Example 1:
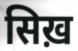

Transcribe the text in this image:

सिख़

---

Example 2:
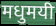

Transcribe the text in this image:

मधुमयी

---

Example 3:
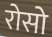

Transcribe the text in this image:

रोसो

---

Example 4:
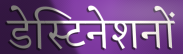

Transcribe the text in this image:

डेस्टिनेशनों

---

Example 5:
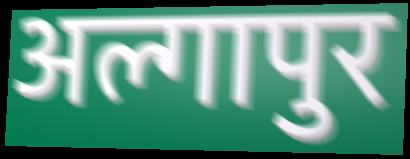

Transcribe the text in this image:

अल्गापुर